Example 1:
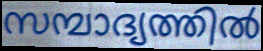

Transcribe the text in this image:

സമ്പാദ്യത്തിൽ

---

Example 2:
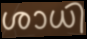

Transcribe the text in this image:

ശാധി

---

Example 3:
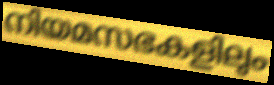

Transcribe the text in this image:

നിയമസഭകളിലും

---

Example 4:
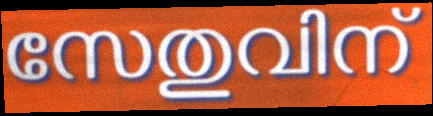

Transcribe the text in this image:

സേതുവിന്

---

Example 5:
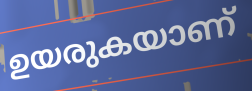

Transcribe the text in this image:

ഉയരുകയാണ്